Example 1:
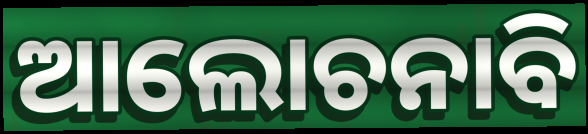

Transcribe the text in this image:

ଆଲୋଚନାବି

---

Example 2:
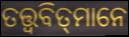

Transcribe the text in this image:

ତତ୍ତ୍ୱବିତ୍‌ମାନେ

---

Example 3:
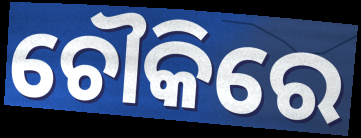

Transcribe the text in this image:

ଚୌକିରେ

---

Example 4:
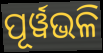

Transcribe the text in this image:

ପୂର୍ୱଭଳି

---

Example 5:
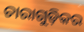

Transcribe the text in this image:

ଚାରାଗୁଡ଼ିକର